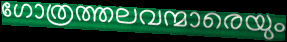
ഗോത്രത്തലവന്മാരെയും